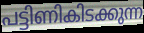
പട്ടിണികിടക്കുന്ന